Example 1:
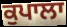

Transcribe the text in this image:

ਕੁਪਾਲਾ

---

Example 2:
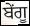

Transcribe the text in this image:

ਬੇਂਗੂ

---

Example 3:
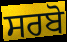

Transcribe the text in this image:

ਸਰਬੋ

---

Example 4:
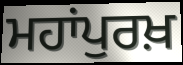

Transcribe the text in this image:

ਮਹਾਂਪੁਰਖ਼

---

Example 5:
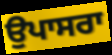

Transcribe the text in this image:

ਉਪਾਸਰਾ